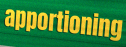
apportioning